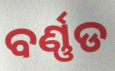
ବର୍ଣ୍ଣଡ